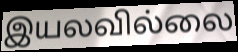
இயலவில்லை